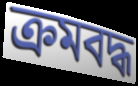
ক্ৰমবদ্ধ